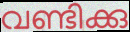
വണ്ടിക്കു